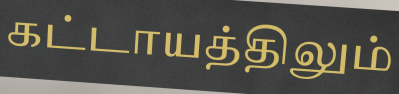
கட்டாயத்திலும்